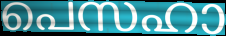
പെസഹാ